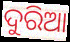
ଦୁରିଆ